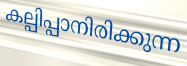
കല്പിപ്പാനിരിക്കുന്ന